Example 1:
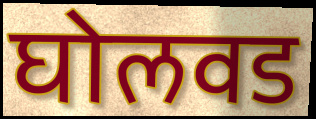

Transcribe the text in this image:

घोलवड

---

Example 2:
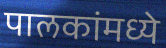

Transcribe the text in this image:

पालकांमध्ये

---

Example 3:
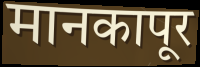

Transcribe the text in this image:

मानकापूर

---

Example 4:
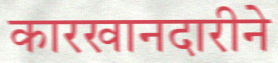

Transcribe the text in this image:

कारखानदारीने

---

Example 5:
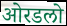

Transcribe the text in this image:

ओरडलो